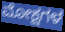
ಮೋಕ್ಷಗಳ